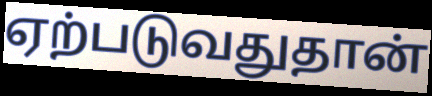
ஏற்படுவதுதான்